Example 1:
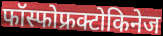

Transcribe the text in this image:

फॉस्फोफ्रक्टोकिनेज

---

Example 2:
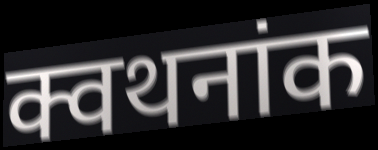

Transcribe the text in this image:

क्वथनांक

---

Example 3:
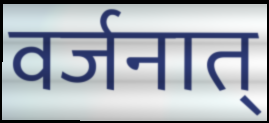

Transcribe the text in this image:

वर्जनात्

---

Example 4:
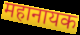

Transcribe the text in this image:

महानायक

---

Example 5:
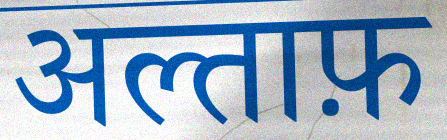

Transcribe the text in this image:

अल्ताफ़